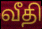
வீதி